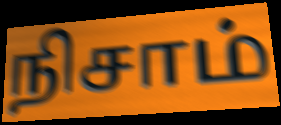
நிசாம்